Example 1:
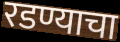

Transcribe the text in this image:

रडण्याचा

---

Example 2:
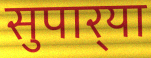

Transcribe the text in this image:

सुपार्‍या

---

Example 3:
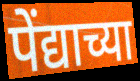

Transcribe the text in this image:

पेंद्याच्या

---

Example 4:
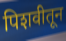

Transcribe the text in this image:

पिशवीतून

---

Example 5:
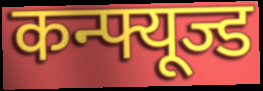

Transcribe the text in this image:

कन्फ्यूज्ड